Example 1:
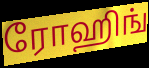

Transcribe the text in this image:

ரோஹிங்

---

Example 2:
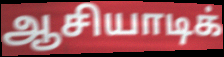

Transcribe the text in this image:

ஆசியாடிக்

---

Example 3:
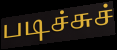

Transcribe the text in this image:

படிச்சுச்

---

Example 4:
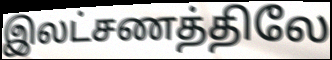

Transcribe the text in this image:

இலட்சணத்திலே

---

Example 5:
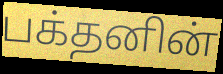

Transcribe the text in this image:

பக்தனின்